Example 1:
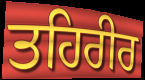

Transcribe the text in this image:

ਤਹਿਰੀਰ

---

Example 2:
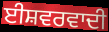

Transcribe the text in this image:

ਈਸ਼ਵਰਵਾਦੀ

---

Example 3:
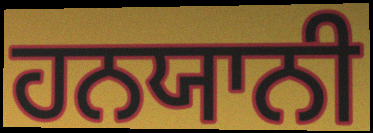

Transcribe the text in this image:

ਹਨਯਾਨੀ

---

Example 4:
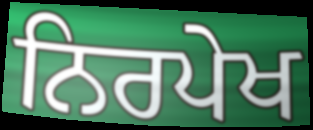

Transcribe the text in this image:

ਨਿਰਪੇਖ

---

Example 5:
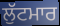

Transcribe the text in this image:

ਲੁੱਟਮਾਰ